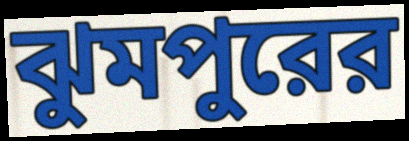
ঝুমপুরের